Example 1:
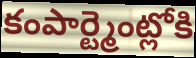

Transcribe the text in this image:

కంపార్ట్మెంట్లోకి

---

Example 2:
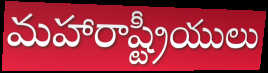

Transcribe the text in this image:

మహారాష్ట్రీయులు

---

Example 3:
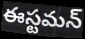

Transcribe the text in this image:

ఈస్టమన్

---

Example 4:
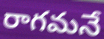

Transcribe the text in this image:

రాగమనే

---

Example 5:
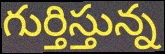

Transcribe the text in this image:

గుర్తిస్తున్న